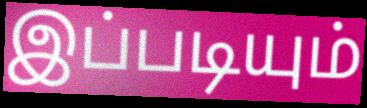
இப்படியும்